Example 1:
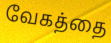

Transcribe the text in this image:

வேகத்தை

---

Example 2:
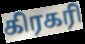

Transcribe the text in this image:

கிரகரி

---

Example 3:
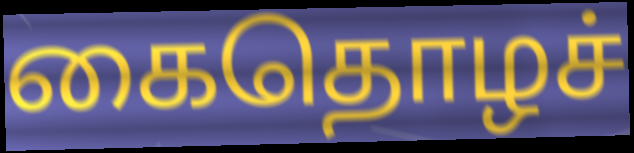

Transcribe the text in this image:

கைதொழச்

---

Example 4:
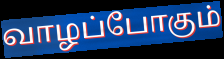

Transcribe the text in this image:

வாழப்போகும்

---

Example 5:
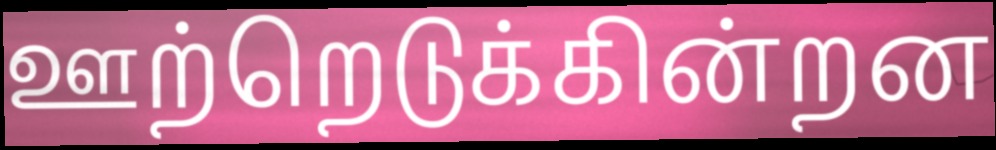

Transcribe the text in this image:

ஊற்றெடுக்கின்றன